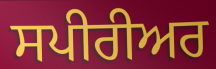
ਸਪੀਰੀਅਰ